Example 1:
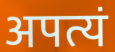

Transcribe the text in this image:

अपत्यं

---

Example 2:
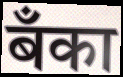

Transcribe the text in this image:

बँका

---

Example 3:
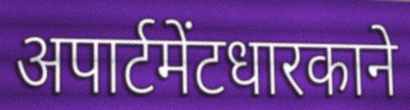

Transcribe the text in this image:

अपार्टमेंटधारकाने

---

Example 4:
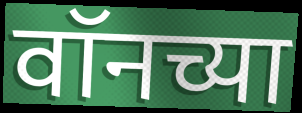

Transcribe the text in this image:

वॉनच्या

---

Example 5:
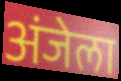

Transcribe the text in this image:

अंजेला